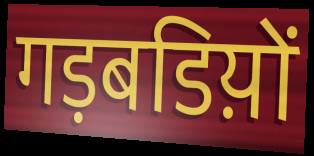
गड़बडिय़ों